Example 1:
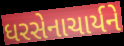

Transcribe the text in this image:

ધરસેનાચાર્યને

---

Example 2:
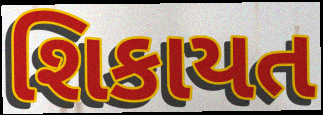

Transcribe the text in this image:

શિકાયત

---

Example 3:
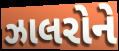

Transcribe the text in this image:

ઝાલરોને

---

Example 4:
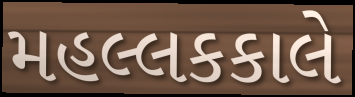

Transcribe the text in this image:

મહલ્લકકાલે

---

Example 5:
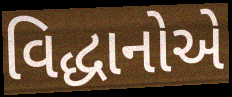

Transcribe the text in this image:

વિદ્ધાનોએ